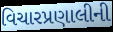
વિચારપ્રણાલીની